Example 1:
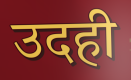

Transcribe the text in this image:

उदही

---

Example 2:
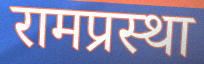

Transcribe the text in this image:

रामप्रस्था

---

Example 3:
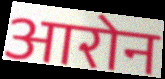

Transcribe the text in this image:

आरोन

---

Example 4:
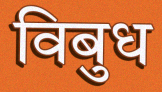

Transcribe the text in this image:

विबुध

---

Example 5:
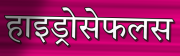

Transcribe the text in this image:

हाइड्रोसेफलस